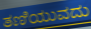
ತಣಿಯುವದು